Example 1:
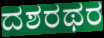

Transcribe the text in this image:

ದಶರಥರ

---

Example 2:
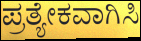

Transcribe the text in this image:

ಪ್ರತ್ಯೇಕವಾಗಿಸಿ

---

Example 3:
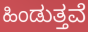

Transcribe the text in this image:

ಹಿಂಡುತ್ತವೆ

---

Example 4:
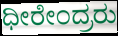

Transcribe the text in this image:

ಧೀರೇಂದ್ರರು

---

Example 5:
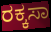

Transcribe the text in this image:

ರಕ್ಕಸಾ